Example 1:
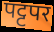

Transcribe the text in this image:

पट्टपर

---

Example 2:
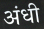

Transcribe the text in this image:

अंधी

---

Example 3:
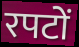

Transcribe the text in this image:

रपटों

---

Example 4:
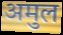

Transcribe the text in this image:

अमुल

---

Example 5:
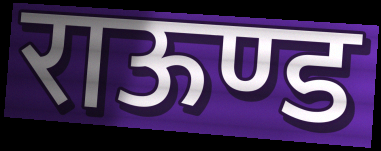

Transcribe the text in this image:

राऊण्ड